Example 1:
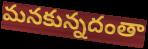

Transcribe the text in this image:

మనకున్నదంతా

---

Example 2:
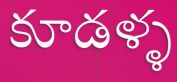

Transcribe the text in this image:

కూడళ్ళ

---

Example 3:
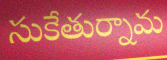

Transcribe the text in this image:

సుకేతుర్నామ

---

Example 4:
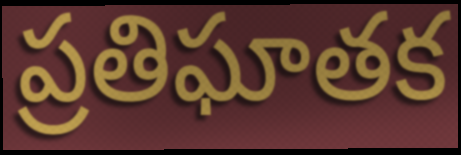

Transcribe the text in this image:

ప్రతిఘాతక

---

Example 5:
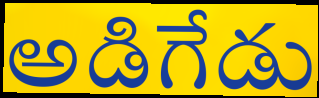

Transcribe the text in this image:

అడిగేడు